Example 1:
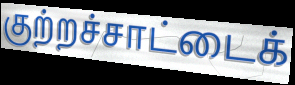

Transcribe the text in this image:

குற்றச்சாட்டைக்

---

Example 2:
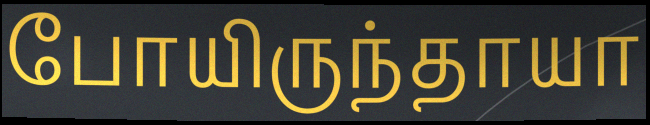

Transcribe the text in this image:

போயிருந்தாயா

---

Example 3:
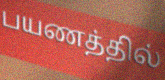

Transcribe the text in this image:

பயணத்தில்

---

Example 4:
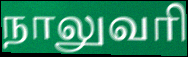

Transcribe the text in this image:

நாலுவரி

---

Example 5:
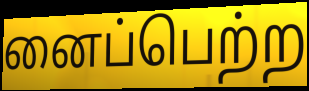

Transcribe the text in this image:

னைப்பெற்ற